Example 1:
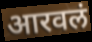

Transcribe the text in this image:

आरवलं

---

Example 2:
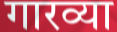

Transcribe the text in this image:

गारव्या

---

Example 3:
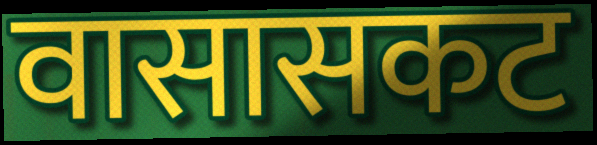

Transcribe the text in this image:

वासासकट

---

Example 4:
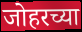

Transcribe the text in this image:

जोहरच्या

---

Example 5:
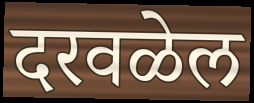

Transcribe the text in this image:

दरवळेल